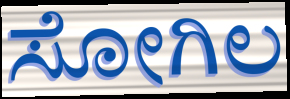
ಸೋಗಿಲ